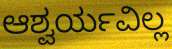
ಆಶ್ವರ್ಯವಿಲ್ಲ